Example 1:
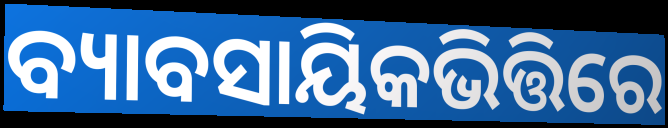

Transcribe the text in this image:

ବ୍ୟାବସାୟିକଭିତ୍ତିରେ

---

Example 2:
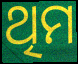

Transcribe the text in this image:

ଥିମ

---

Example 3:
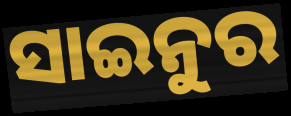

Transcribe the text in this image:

ସାଇନୁର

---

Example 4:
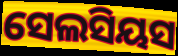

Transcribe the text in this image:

ସେଲସିୟସ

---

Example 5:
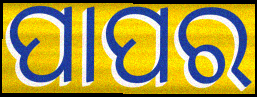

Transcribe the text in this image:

ପାପର